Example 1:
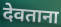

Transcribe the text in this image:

देवताना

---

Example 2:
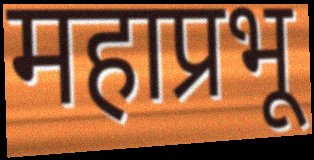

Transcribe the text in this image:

महाप्रभू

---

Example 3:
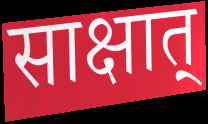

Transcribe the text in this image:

साक्षात्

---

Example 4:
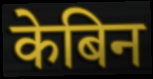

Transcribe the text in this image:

केबिन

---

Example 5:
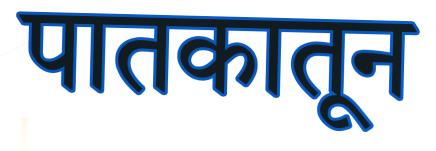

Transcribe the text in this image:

पातकातून